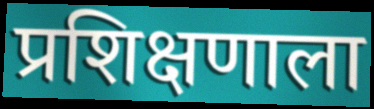
प्रशिक्षणाला